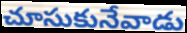
చూసుకునేవాడు